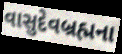
વાસુદેવબ્રહ્મના